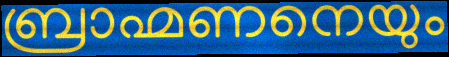
ബ്രാഹ്മണനെയും